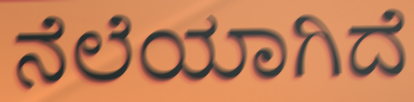
ನೆಲೆಯಾಗಿದೆ